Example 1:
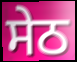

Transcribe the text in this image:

ਸੇਠ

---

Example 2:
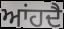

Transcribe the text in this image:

ਆਂਹਦੈ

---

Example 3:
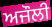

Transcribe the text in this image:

ਅਜੌਲੀ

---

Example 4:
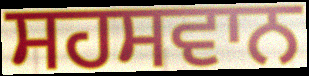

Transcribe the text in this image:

ਸਹਸਵਾਨ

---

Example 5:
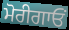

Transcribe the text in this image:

ਮੋਰੀਗਾਓਂ